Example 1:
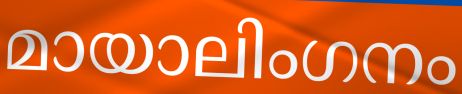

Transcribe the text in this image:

മായാലിംഗനം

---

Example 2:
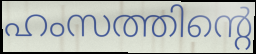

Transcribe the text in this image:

ഹംസത്തിന്റെ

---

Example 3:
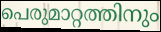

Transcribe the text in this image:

പെരുമാറ്റത്തിനും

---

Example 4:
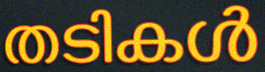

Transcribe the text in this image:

തടികൾ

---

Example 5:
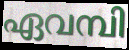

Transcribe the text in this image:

ഏവമ്പി